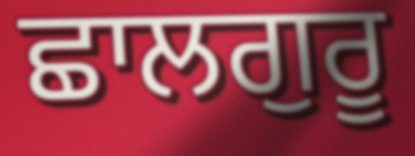
ਛਾਲਗੁਰੂ